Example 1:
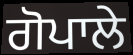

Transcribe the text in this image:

ਗੋਪਾਲੇ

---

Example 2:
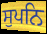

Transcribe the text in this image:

ਸੁਪਨਿ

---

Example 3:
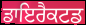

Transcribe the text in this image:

ਡਾਇਰੈਕਟਡ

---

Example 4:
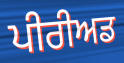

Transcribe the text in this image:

ਪੀਰੀਅਡ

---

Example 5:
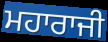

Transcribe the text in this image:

ਮਹਾਰਾਜੀ